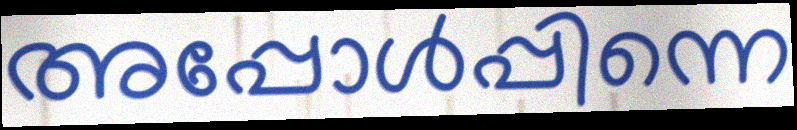
അപ്പോൾപ്പിന്നെ